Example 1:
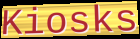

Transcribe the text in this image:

Kiosks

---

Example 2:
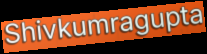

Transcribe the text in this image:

Shivkumragupta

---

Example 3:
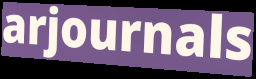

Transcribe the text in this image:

arjournals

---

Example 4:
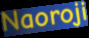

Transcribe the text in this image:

Naoroji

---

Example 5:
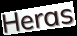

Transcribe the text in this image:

Heras